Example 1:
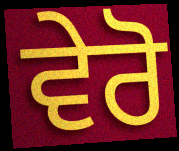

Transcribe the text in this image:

ਵੇਰੋ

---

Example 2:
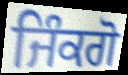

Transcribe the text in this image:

ਜਿੰਕਗੋ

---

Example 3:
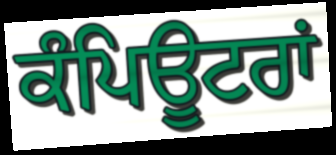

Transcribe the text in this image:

ਕੰਪਿਊਟਰਾਂ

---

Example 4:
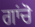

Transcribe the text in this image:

ਗਾਂਚੋ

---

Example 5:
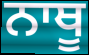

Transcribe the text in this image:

ਨਾਥੂ